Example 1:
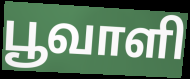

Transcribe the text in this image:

பூவாளி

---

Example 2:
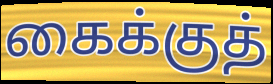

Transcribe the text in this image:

கைக்குத்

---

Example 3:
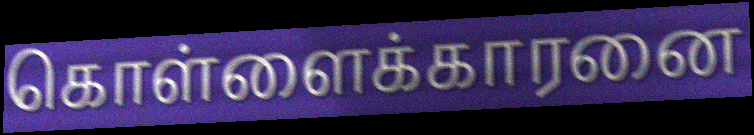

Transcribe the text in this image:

கொள்ளைக்காரனை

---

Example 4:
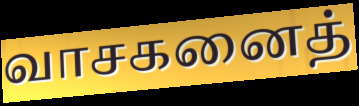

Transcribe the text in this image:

வாசகனைத்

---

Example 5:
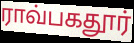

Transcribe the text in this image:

ராவ்பகதூர்